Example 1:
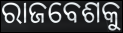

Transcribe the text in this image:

ରାଜବେଶକୁ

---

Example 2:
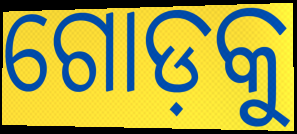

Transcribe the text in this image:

ଗୋଡ଼କୁ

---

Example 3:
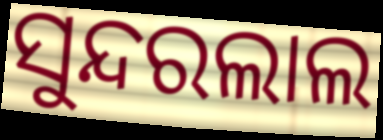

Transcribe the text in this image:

ସୁନ୍ଦରଲାଲ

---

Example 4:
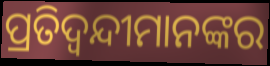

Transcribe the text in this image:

ପ୍ରତିଦ୍ୱନ୍ଦୀମାନଙ୍କର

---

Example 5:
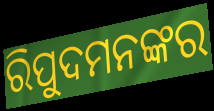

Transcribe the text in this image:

ରିପୁଦମନଙ୍କର